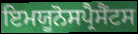
ਇਮਯੂਨੋਸਪ੍ਰੈਸੈਂਟਸ